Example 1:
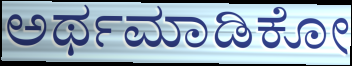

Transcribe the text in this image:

ಅರ್ಥಮಾಡಿಕೋ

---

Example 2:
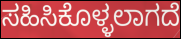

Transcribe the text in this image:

ಸಹಿಸಿಕೊಳ್ಳಲಾಗದೆ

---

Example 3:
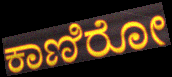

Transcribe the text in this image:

ಕಾಣಿರೋ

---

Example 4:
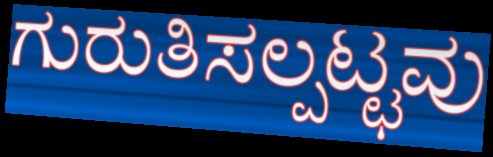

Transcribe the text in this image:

ಗುರುತಿಸಲ್ಪಟ್ಟವು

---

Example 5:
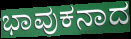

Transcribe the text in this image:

ಭಾವುಕನಾದ